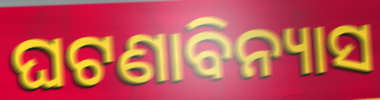
ଘଟଣାବିନ୍ୟାସ